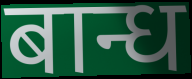
बान्ध